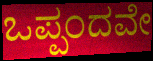
ಒಪ್ಪಂದವೇ